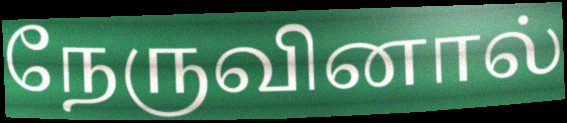
நேருவினால்